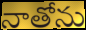
నాతోను